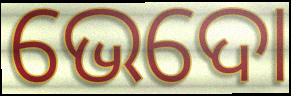
ଭେଦୋ